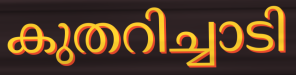
കുതറിച്ചാടി